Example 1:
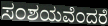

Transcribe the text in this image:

ಸಂಶಯವೆಂದರೆ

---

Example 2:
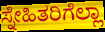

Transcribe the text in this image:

ಸ್ನೇಹಿತರಿಗೆಲ್ಲಾ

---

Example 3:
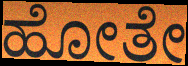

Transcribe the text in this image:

ಹೋತೇ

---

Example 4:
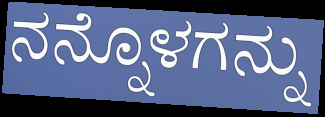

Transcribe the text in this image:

ನನ್ನೊಳಗನ್ನು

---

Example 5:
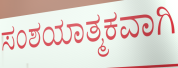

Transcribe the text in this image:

ಸಂಶಯಾತ್ಮಕವಾಗಿ